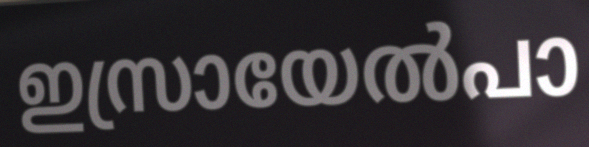
ഇസ്രായേൽപാ